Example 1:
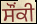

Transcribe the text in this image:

ਸੌਂਕੀ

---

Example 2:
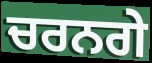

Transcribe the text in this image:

ਚਰਨਗੇ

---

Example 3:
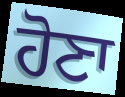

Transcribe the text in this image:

ਹੋਣਾ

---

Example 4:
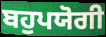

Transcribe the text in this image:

ਬਹੁਪਯੋਗੀ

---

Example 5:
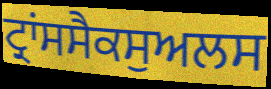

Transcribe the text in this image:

ਟ੍ਰਾਂਸਸੈਕਸੁਅਲਸ